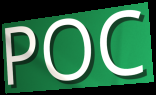
POC